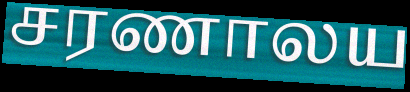
சரணாலய